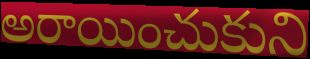
అరాయించుకుని